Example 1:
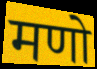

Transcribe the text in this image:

मणो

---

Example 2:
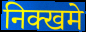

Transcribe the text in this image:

निक्खमे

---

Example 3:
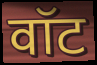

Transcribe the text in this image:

वॉट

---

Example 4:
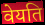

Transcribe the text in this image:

वेयति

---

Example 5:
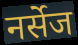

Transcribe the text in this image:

नर्सेज